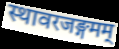
स्थावरजङ्गमम्